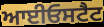
ਆਈਓਸਟੈਟ